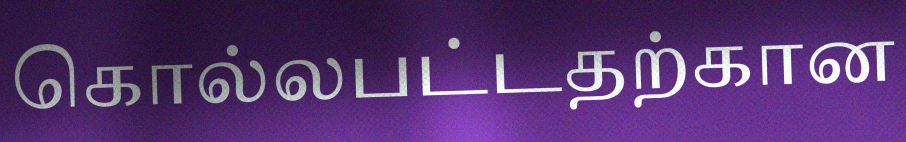
கொல்லபட்டதற்கான